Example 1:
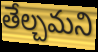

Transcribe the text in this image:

తేల్చమని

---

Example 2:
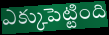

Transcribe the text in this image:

ఎక్కుపెట్టింది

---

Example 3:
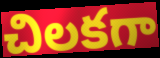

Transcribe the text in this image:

చిలకగా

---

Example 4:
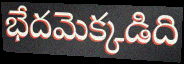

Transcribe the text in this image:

భేదమెక్కడిది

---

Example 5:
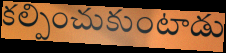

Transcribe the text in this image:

కల్పించుకుంటాడు